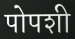
पोपशी